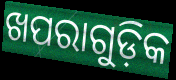
ଖପରାଗୁଡ଼ିକ